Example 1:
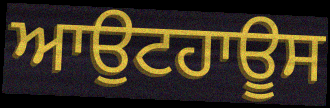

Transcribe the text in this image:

ਆਉਟਹਾਊਸ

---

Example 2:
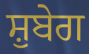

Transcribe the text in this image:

ਸ਼ੁਬੇਗ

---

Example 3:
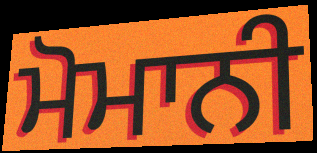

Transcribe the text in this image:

ਮੋਮਾਨੀ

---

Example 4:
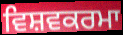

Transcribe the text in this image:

ਵਿਸ਼ਵਕਰਮਾ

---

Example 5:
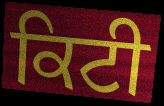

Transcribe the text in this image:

ਕਿਟੀ